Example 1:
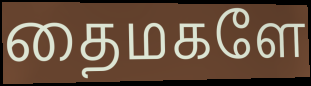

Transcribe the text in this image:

தைமகளே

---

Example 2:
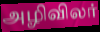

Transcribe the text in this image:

அழிவிலர்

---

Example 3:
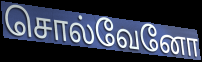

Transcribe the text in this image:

சொல்வேனோ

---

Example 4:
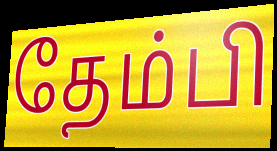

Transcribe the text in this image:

தேம்பி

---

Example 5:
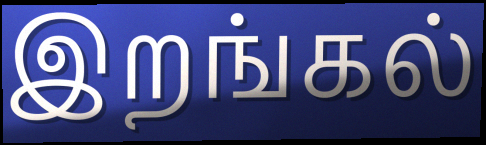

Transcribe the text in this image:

இறங்கல்